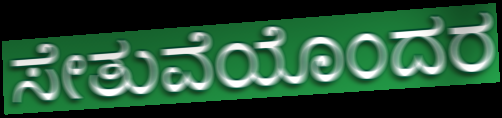
ಸೇತುವೆಯೊಂದರ